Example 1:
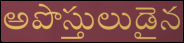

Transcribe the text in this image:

అపొస్తులుడైన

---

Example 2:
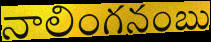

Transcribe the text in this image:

నాలింగనంబు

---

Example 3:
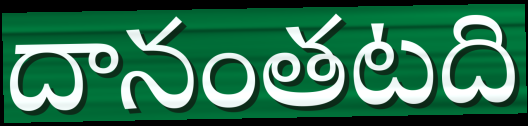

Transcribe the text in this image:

దానంతటది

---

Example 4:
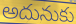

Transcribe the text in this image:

అదునుకు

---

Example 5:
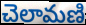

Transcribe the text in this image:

చెలామణి